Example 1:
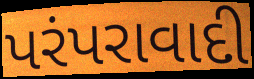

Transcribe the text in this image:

પરંપરાવાદી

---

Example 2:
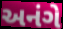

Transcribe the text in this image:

અનંગે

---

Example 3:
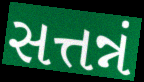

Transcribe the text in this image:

સત્તન્નં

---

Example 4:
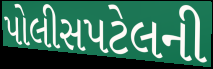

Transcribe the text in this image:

પોલીસપટેલની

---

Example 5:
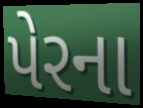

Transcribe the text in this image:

પેરના